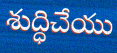
శుద్ధిచేయు